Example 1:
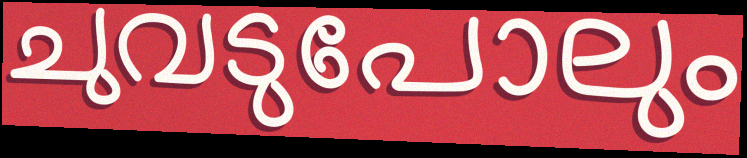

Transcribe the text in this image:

ചുവടുപോലും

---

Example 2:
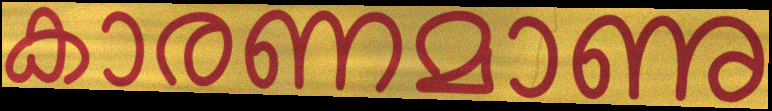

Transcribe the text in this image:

കാരണമാണു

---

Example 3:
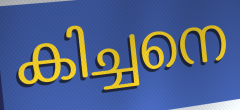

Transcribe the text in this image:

കിച്ചനെ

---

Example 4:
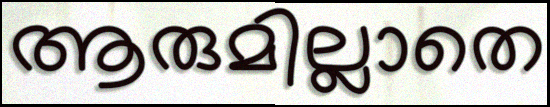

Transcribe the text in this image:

ആരുമില്ലാതെ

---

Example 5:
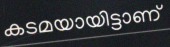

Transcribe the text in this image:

കടമയായിട്ടാണ്